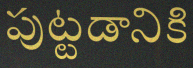
పుట్టడానికి